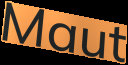
Maut